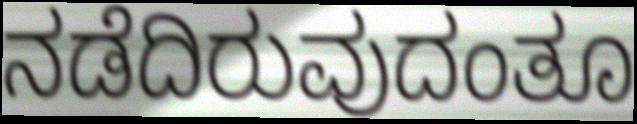
ನಡೆದಿರುವುದಂತೂ